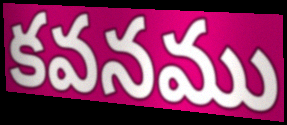
కవనము